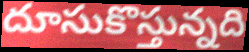
దూసుకొస్తున్నది